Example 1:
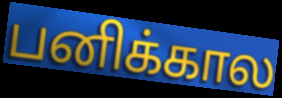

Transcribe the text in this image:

பனிக்கால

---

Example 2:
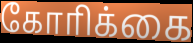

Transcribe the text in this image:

கோரிக்கை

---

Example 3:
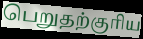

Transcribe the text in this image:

பெறுதற்குரிய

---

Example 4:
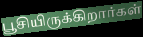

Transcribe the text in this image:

பூசியிருக்கிறார்கள்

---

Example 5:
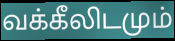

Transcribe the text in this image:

வக்கீலிடமும்